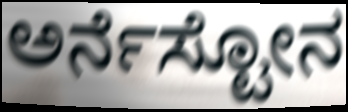
ಅರ್ನೆಸ್ಟೋನ